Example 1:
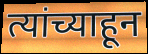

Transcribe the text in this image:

त्यांच्याहून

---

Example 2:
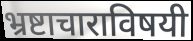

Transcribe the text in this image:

भ्रष्टाचाराविषयी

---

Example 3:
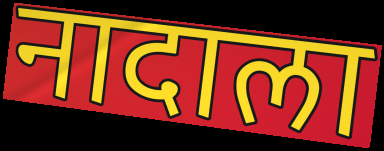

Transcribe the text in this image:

नादाला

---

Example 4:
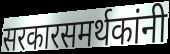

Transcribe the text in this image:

सरकारसमर्थकांनी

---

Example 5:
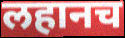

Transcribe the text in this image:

लहानच